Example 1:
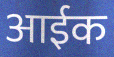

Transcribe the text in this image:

आईक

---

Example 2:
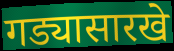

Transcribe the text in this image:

गड्यासारखे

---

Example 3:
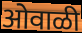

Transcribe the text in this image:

ओवाळी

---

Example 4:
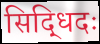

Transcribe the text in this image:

सिद्धिदः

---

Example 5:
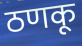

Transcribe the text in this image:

ठणकू